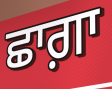
ਛਾਗ਼ਾ